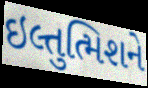
ઇલ્તુત્મિશને